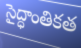
సైద్ధాంతికత